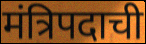
मंत्रिपदाची